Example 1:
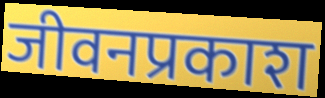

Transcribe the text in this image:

जीवनप्रकाश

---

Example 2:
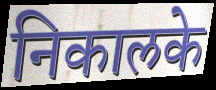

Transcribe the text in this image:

निकालके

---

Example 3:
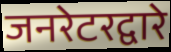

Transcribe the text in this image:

जनरेटरद्वारे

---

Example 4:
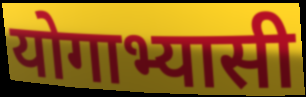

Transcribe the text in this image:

योगाभ्यासी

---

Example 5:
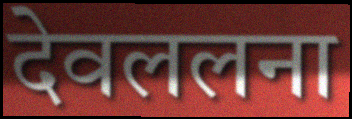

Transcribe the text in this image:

देवललना